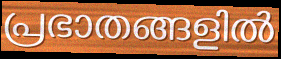
പ്രഭാതങ്ങളിൽ